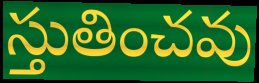
స్తుతించవు